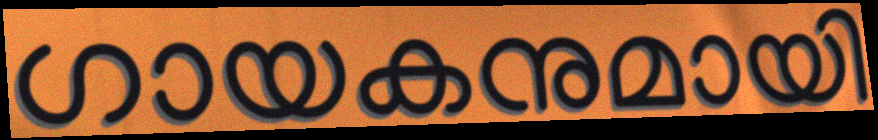
ഗായകനുമായി